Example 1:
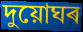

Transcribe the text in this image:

দুয়োঘৰ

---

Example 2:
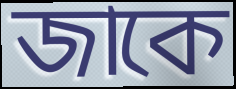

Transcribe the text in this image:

জাকে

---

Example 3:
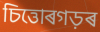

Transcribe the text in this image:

চিত্তোৰগড়ৰ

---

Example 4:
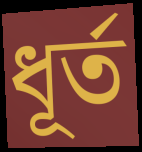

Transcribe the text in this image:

ধূৰ্ত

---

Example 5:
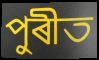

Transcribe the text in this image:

পুৰীত